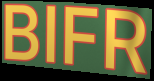
BIFR